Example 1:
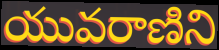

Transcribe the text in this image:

యువరాణిని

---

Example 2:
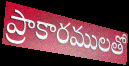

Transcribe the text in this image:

ప్రాకారములతో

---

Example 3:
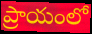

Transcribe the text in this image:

ప్రాయంలో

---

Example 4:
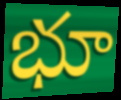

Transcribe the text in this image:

భూ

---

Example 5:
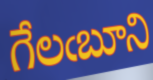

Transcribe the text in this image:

గేలఁబూని